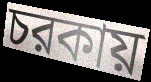
চরকায়